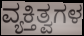
ವ್ಯಕ್ತಿತ್ವಗಳ